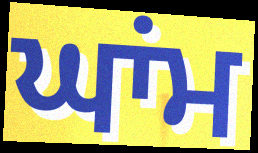
ਘਾਂਮ